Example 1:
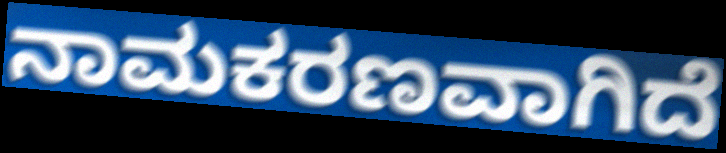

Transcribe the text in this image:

ನಾಮಕರಣವಾಗಿದೆ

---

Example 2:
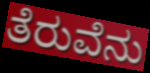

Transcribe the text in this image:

ತೆರುವೆನು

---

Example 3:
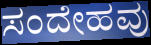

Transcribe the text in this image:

ಸಂದೇಹವು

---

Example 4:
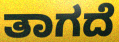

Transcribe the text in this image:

ತಾಗದೆ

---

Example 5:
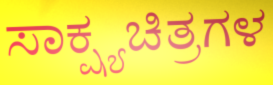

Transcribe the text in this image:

ಸಾಕ್ಷ್ಯಚಿತ್ರಗಳ